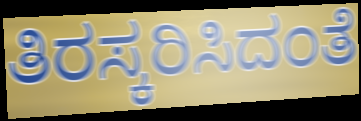
ತಿರಸ್ಕರಿಸಿದಂತೆ